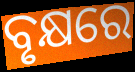
ବୃକ୍ଷରେ